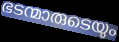
ഭടന്മാരുടെയും